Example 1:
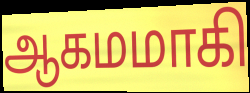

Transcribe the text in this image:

ஆகமமாகி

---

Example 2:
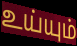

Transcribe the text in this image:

உய்யும்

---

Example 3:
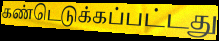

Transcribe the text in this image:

கண்டெடுக்கப்பட்டது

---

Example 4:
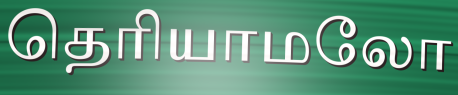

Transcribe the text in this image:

தெரியாமலோ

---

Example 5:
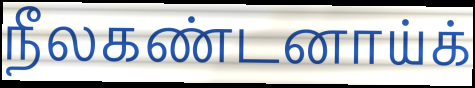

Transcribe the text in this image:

நீலகண்டனாய்க்